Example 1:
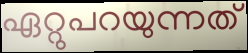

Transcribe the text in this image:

ഏറ്റുപറയുന്നത്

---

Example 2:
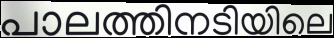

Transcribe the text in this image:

പാലത്തിനടിയിലെ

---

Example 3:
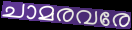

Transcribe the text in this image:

ചാമരവരേ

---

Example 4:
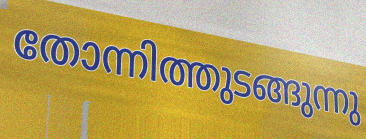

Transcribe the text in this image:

തോന്നിത്തുടങ്ങുന്നു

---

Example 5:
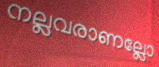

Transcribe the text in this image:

നല്ലവരാണല്ലോ